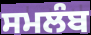
ਸਮਲੰਬ